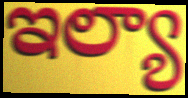
ఇల్యా